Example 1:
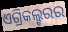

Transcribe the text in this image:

ଏଗ୍ରିକଲ୍ଚରର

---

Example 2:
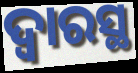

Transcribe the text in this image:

ଦ୍ବାରସ୍ଥ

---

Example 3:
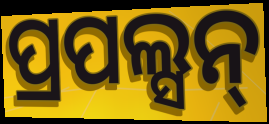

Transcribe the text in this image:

ପ୍ରପଲ୍ସନ୍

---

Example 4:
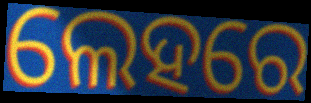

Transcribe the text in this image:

ଲେହରେ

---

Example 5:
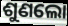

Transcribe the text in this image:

ଶୁଣଲୋ